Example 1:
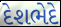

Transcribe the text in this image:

દેશભેદે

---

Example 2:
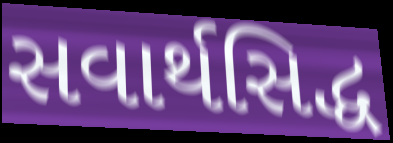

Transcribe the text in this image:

સવાર્થસિદ્ધ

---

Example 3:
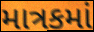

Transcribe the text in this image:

માત્રકમાં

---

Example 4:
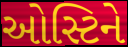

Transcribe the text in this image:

ઓસ્ટિને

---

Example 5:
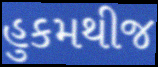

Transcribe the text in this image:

હુકમથીજ